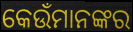
କେଉଁମାନଙ୍କର